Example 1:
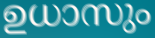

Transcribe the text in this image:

ഉധാസും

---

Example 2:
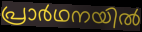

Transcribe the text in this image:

പ്രാർഥനയിൽ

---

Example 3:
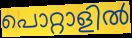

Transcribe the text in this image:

പൊറ്റാളിൽ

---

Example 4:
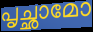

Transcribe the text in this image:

പൃച്ഛാമോ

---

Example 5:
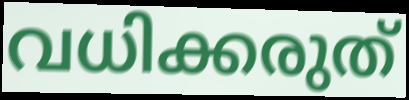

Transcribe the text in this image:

വധിക്കരുത്